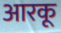
आरकू